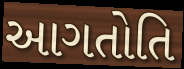
આગતોતિ